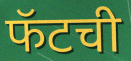
फॅटची